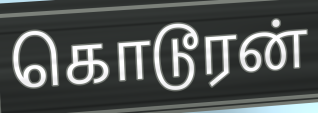
கொடூரன்